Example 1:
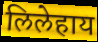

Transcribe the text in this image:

लिलेहाय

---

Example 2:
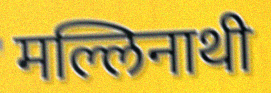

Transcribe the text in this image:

मल्लिनाथी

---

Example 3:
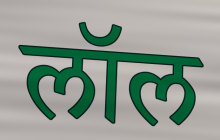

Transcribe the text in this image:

लॉल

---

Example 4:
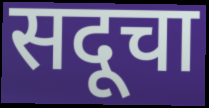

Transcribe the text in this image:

सदूचा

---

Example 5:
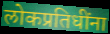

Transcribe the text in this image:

लोकप्रतिधींना